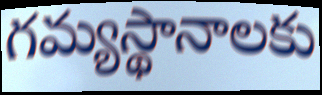
గమ్యస్థానాలకు